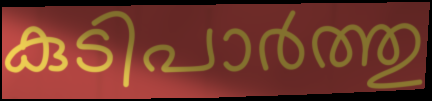
കുടിപാർത്തു